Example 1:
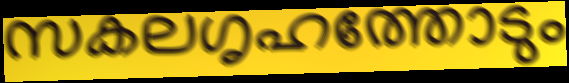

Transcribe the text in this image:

സകലഗൃഹത്തോടും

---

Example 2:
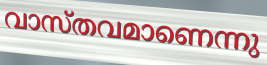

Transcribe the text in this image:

വാസ്തവമാണെന്നു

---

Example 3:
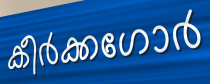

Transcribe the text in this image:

കീർക്കഗോർ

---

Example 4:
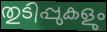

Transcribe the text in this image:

തുടിപ്പുകളും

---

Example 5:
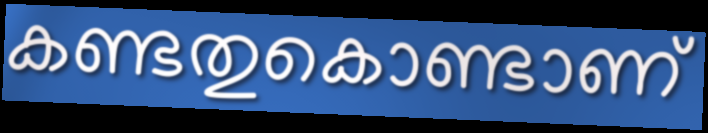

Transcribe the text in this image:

കണ്ടതുകൊണ്ടാണ്